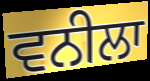
ਵਨੀਲਾ